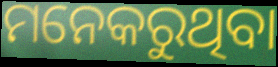
ମନେକରୁଥିବା